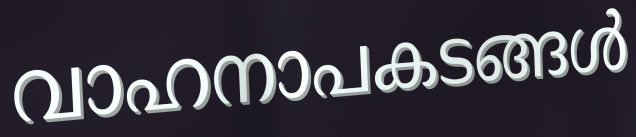
വാഹനാപകടങ്ങൾ